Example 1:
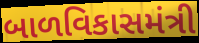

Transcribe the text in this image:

બાળવિકાસમંત્રી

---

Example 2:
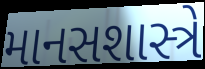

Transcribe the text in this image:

માનસશાસ્ત્રે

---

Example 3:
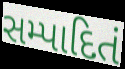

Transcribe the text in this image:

સમ્પાદિતં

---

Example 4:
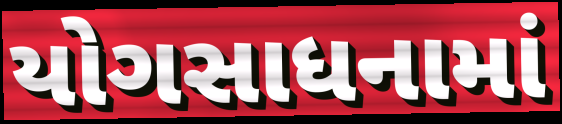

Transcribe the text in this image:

યોગસાધનામાં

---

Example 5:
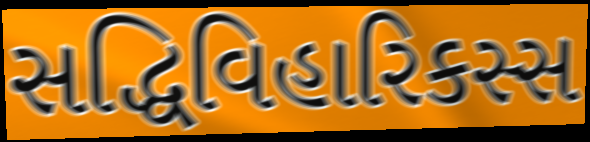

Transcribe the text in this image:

સદ્ધિવિહારિકસ્સ